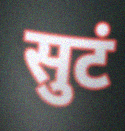
सुटं